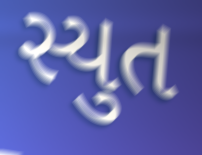
સ્યુત